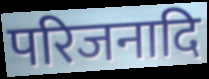
परिजनादि